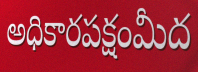
అధికారపక్షంమీద